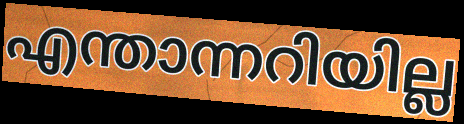
എന്താന്നറിയില്ല